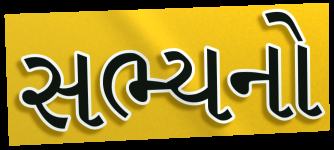
સભ્યનો